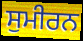
ਸੁਮੀਰਨ